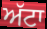
ਅੱਟਾ